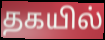
தகயில்